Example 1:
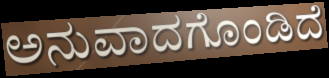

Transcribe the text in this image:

ಅನುವಾದಗೊಂಡಿದೆ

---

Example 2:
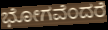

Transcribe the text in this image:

ಭೋಗವೆಂದರೆ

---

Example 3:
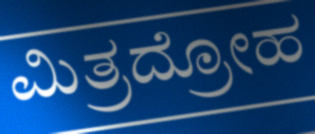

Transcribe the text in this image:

ಮಿತ್ರದ್ರೋಹ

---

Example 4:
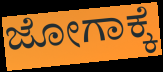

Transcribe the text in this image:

ಜೋಗಾಕ್ಕೆ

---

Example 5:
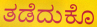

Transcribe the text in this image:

ತಡೆದುಕೊ